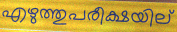
എഴുത്തുപരീക്ഷയില്